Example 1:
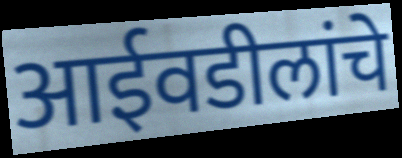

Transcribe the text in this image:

आईवडीलांचे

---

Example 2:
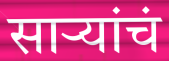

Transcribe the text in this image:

साऱ्यांचं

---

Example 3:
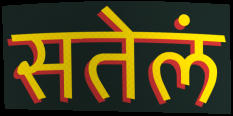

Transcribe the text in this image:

सतेलं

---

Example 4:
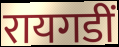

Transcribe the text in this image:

रायगडीं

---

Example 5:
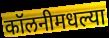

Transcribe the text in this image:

कॉलनीमधल्या